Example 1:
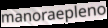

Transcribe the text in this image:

manoraepleno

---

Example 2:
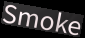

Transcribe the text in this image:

Smoke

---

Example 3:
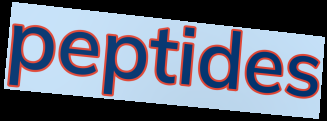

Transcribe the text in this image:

peptides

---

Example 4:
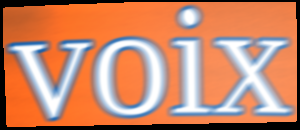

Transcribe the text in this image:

voix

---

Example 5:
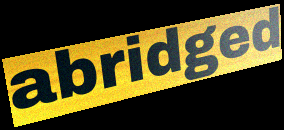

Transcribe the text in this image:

abridged